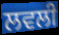
ਲਵਲੀ